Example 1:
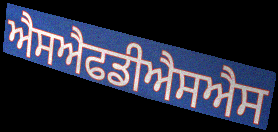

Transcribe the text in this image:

ਐਸਐਫਡੀਐਸਐਸ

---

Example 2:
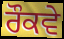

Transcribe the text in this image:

ਰੌਕਵੇ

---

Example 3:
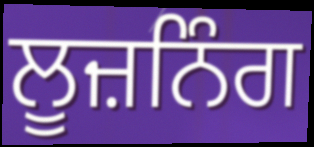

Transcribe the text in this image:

ਲੂਜ਼ਨਿੰਗ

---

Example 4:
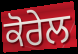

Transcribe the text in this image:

ਕੋਰੇਲ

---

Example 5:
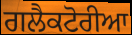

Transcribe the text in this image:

ਗਲੈਕਟੋਰੀਆ